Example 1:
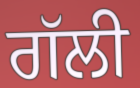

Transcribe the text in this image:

ਗੱਲੀ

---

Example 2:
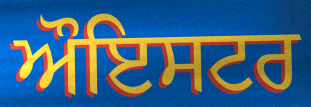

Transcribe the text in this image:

ਔਇਸਟਰ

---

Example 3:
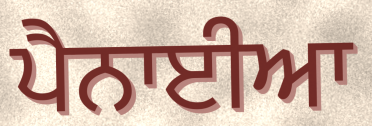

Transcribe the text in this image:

ਪੈਨਾਈਆ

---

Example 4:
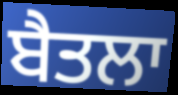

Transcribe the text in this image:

ਬੈਤਲਾ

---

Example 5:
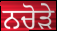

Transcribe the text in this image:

ਨਚੋੜੇ